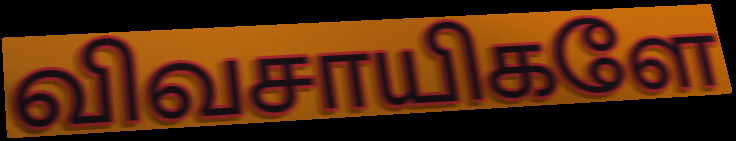
விவசாயிகளே